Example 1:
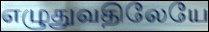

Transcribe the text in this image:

எழுதுவதிலேயே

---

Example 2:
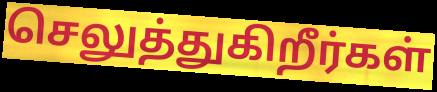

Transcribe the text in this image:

செலுத்துகிறீர்கள்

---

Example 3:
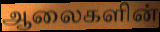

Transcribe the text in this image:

ஆலைகளின்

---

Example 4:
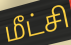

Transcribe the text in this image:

மீட்சி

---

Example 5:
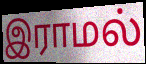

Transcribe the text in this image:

இராமல்